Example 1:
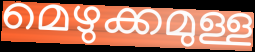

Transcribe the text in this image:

മെഴുക്കമുള്ള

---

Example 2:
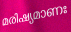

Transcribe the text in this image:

മരിഷ്യമാണഃ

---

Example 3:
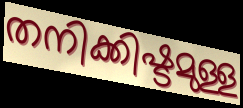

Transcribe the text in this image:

തനിക്കിഷ്ടമുള്ള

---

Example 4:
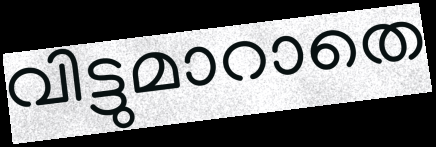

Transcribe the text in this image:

വിട്ടുമാറാതെ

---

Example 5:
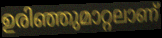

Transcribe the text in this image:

ഉരിഞ്ഞുമാറ്റലാണ്